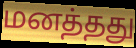
மனத்தது